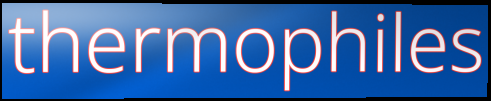
thermophiles